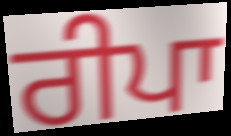
ਰੀਪਾ